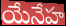
యేనేహ